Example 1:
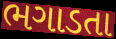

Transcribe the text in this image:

ભગાડતા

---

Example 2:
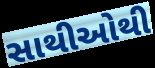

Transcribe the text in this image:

સાથીઓથી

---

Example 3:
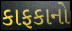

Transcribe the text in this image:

કાફકાનો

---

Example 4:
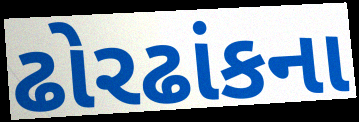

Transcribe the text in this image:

ઢોરઢાંકના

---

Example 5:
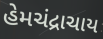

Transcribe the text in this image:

હેમચંદ્રાચાય